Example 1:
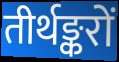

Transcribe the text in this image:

तीर्थङ्करों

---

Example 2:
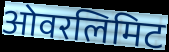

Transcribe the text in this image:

ओवरलिमिट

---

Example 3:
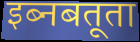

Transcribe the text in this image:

इब्नबतूता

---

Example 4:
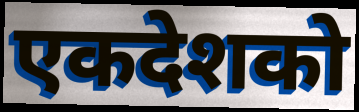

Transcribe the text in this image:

एकदेशको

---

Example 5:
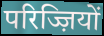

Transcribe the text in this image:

परिज्ज़ियों